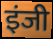
इंजी